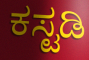
ಕಸ್ಟಡಿ